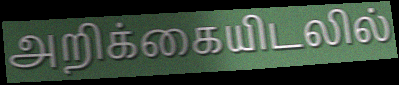
அறிக்கையிடலில்